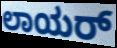
ಲಾಯರ್